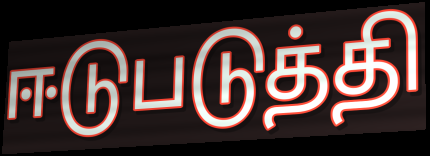
ஈடுபடுத்தி